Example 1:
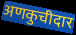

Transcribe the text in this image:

अणकुचीदार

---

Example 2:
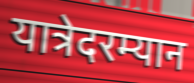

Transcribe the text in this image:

यात्रेदरम्यान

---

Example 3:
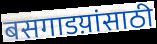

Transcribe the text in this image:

बसगाडय़ांसाठी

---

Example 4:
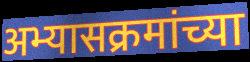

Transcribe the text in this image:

अभ्यासक्रमांच्या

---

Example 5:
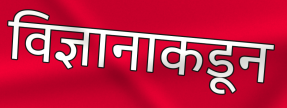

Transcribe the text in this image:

विज्ञानाकडून